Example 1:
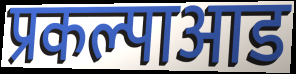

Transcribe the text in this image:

प्रकल्पाआड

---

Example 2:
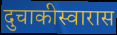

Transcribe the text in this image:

दुचाकीस्वारास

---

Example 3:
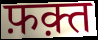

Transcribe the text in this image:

फ़क़्त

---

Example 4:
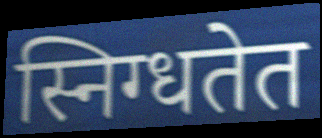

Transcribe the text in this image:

स्निग्धतेत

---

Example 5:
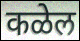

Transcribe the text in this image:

कळेल